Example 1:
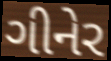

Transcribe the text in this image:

ગીનેર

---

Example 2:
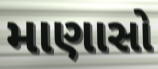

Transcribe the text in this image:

માણાસો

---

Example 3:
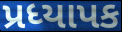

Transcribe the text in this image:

પ્રધ્યાપક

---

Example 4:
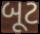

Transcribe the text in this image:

બૂટ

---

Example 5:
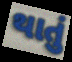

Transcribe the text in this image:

થાતું